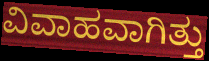
ವಿವಾಹವಾಗಿತ್ತು